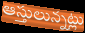
ఆస్తులున్నట్లు